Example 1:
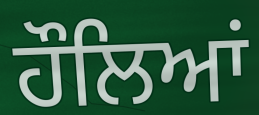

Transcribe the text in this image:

ਹੌਲਿਆਂ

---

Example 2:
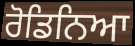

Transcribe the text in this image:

ਰੋਡਿਨਿਆ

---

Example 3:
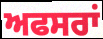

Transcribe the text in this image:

ਅਫਸਰਾਂ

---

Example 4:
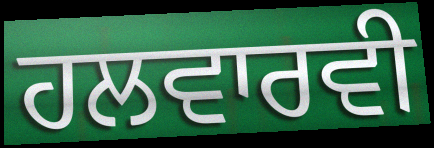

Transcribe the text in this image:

ਹਲਵਾਰਵੀ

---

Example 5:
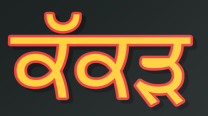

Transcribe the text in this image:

ਕੱਕੜ